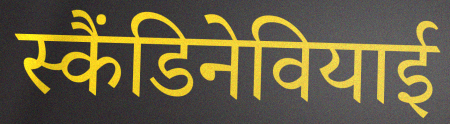
स्कैंडिनेवियाई